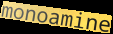
monoamine